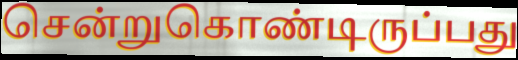
சென்றுகொண்டிருப்பது